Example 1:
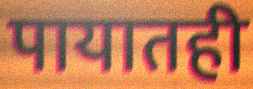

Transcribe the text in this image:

पायातही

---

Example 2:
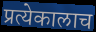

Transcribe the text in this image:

प्रत्येकालाच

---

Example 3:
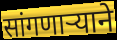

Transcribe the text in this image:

सांगणार्‍याने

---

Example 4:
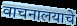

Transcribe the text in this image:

वाचनालयाचे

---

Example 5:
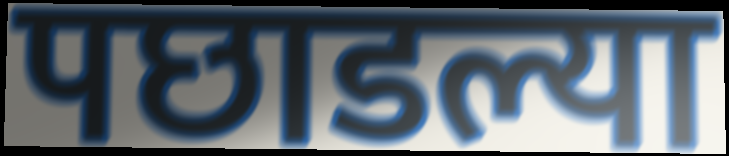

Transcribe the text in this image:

पछाडल्या